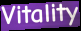
Vitality